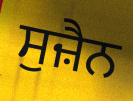
ਸੁਜ਼ੈਨ